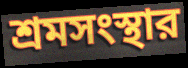
শ্রমসংস্থার